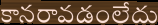
కానరావడంలేదు